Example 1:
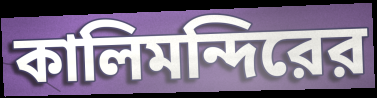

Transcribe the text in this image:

কালিমন্দিরের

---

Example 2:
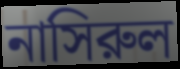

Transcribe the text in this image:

নাসিরুল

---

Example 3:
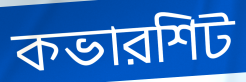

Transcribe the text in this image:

কভারশিট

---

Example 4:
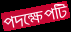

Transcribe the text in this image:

পদক্ষেপটি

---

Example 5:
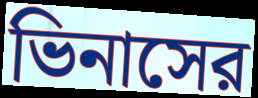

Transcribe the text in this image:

ভিনাসের